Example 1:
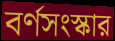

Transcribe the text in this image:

বর্ণসংস্কার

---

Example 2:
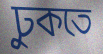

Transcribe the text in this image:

ঢুকতে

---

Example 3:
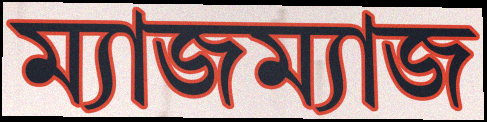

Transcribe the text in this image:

ম্যাজম্যাজ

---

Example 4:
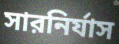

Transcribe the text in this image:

সারনির্যাস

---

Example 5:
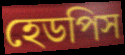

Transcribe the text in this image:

হেডপিস